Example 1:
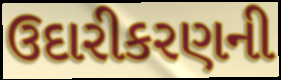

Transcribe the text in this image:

ઉદારીકરણની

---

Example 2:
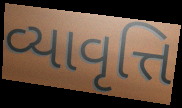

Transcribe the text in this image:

વ્યાવૃત્તિ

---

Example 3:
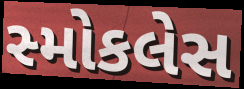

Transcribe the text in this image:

સ્મોકલેસ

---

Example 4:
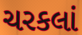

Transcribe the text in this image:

ચરકલાં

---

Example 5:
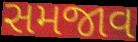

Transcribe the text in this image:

સમજાવ